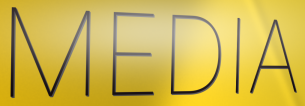
MEDIA